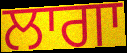
ਲਾਗਾ